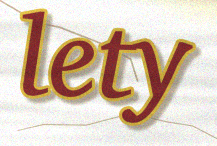
lety